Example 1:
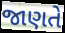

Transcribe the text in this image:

જાણતે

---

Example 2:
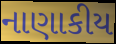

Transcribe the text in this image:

નાણાકીય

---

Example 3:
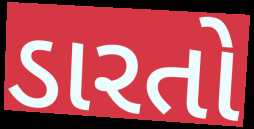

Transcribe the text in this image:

ડારતો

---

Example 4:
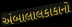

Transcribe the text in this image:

અંબાલાલકાકાનો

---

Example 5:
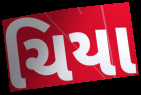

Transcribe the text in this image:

ચિયા